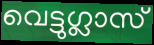
വെട്ടുഗ്ലാസ്